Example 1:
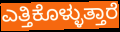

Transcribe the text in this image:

ಎತ್ತಿಕೊಳ್ಳುತ್ತಾರೆ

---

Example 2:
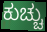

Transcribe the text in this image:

ಕುಚ್ಚು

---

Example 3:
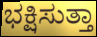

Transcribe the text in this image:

ಭಕ್ಷಿಸುತ್ತಾ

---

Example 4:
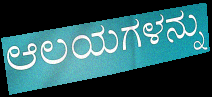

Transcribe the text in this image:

ಆಲಯಗಳನ್ನು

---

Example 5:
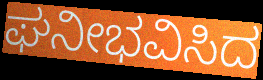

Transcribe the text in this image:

ಘನೀಭವಿಸಿದ